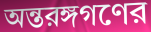
অন্তরঙ্গগণের